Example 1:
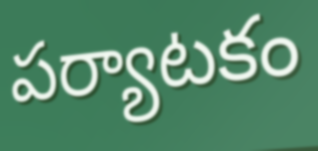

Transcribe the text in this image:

పర్యాటకం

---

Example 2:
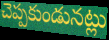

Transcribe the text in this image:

చెప్పకుండునట్లు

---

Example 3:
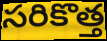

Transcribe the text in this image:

సరికొత్త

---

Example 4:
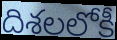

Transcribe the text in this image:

దిశలలోకీ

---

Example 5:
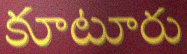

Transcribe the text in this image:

కూటూరు